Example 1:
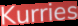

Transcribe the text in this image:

Kurries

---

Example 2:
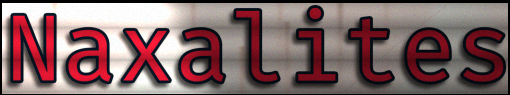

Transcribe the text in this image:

Naxalites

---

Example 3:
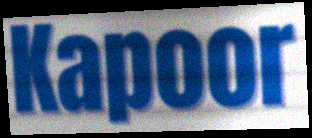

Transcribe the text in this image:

Kapoor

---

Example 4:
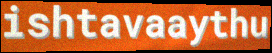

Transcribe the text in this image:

ishtavaaythu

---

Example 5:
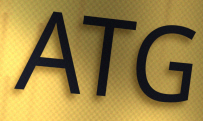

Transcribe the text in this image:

ATG